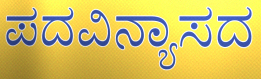
ಪದವಿನ್ಯಾಸದ